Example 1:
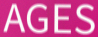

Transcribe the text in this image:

AGES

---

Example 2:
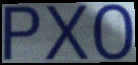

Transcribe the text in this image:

PXO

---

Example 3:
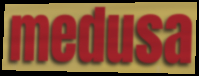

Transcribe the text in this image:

medusa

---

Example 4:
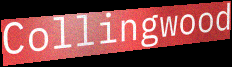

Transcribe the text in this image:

Collingwood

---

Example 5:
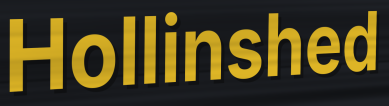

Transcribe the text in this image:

Hollinshed